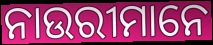
ନାଉରୀମାନେ